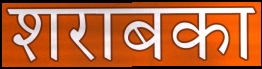
शराबका